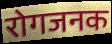
रोगजनक